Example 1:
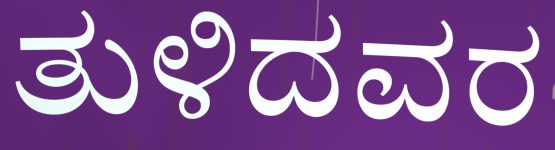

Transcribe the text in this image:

ತುಳಿದವರ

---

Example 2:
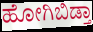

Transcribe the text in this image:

ಹೋಗಿಬಿಡ್ತಾ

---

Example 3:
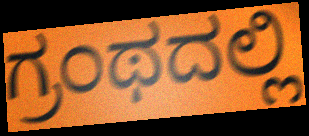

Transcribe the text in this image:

ಗ್ರಂಥದಲ್ಲಿ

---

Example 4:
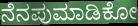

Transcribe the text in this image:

ನೆನಪುಮಾಡಿಕೋ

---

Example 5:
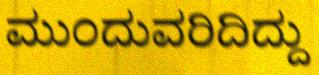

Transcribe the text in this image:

ಮುಂದುವರಿದಿದ್ದು